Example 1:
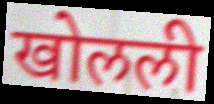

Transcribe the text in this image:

खोलली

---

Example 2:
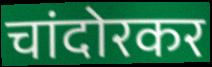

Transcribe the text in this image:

चांदोरकर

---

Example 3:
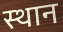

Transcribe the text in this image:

स्थान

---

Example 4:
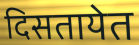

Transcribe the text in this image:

दिसतायेत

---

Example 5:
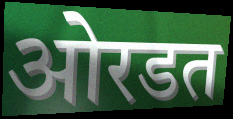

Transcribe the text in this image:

ओरडत